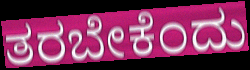
ತರಬೇಕೆಂದು